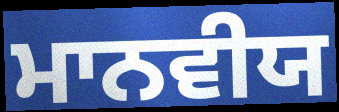
ਮਾਨਵੀਯ